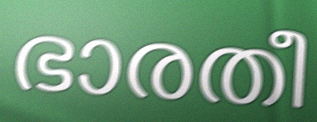
ഭാരതീ